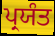
ਪ੍ਰਯੰਤ